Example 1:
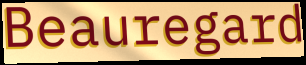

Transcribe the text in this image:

Beauregard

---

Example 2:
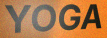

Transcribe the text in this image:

YOGA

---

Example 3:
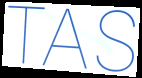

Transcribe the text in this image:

TAS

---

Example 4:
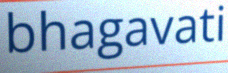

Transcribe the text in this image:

bhagavati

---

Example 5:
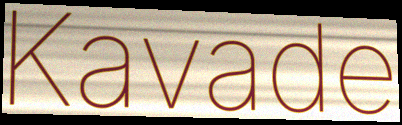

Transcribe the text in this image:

Kavade